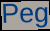
Peg